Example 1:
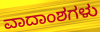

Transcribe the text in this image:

ವಾದಾಂಶಗಳು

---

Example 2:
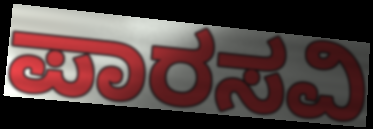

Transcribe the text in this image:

ಪಾರಸವಿ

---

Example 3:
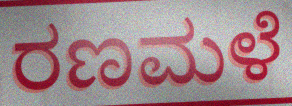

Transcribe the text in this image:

ರಣಮಳೆ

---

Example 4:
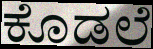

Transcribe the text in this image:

ಕೊಡಲೆ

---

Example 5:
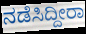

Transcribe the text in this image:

ನಡೆಸಿದ್ದೀರಾ